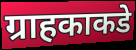
ग्राहकाकडे